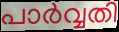
പാർവ്വതി